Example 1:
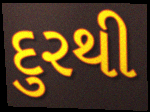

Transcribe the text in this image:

દુરથી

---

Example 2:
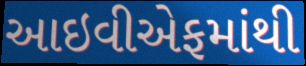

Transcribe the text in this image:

આઇવીએફમાંથી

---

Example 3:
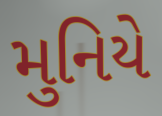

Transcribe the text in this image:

મુનિયે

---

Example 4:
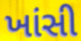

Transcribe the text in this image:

ખાંસી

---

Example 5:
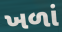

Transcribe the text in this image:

ખળાં